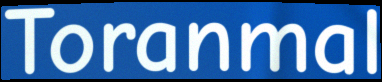
Toranmal